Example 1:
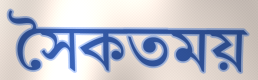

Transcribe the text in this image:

সৈকতময়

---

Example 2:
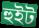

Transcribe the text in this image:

হুইট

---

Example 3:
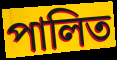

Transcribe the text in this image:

পালিত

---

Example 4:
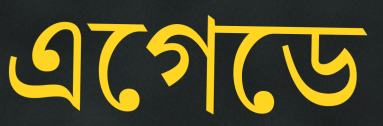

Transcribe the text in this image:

এগেডে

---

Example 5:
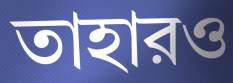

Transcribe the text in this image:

তাহারও